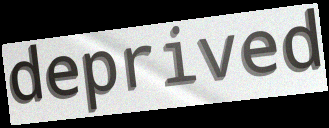
deprived